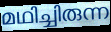
മഥിച്ചിരുന്ന